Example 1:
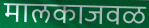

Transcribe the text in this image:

मालकाजवळ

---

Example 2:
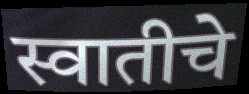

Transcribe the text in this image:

स्वातीचे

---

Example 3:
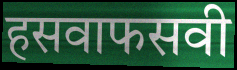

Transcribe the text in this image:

हसवाफसवी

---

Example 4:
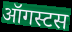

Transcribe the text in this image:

ऑगस्टस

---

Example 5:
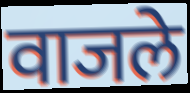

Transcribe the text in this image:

वाजले